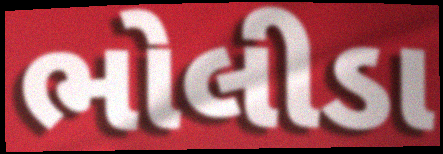
ભોલીડા